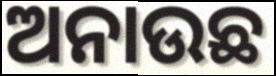
ଅନାଉଛ